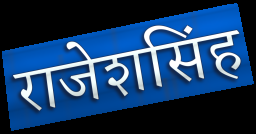
राजेशसिंह